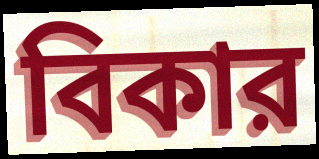
বিকার